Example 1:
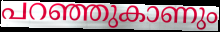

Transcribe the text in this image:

പറഞ്ഞുകാണും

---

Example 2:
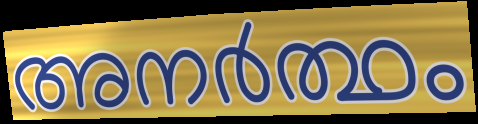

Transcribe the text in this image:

അനർത്ഥം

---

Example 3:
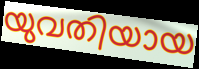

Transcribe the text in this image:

യുവതിയായ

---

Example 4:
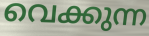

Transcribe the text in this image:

വെക്കുന്ന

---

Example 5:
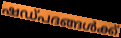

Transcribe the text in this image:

ഷഡ്പദങ്ങൾക്ക്